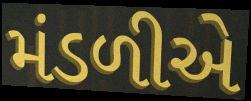
મંડળીએ